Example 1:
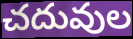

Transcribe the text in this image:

చదువుల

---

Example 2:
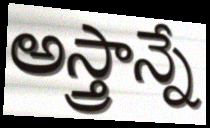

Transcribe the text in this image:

అస్త్రాన్నే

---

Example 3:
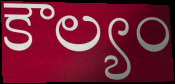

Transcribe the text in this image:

కౌల్యం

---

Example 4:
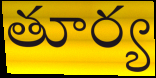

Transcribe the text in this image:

తూర్య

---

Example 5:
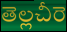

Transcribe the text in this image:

తెల్లచీరె